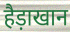
हैड़ाखान